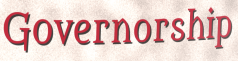
Governorship